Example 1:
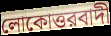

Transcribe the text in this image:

লোকোত্তরবাদী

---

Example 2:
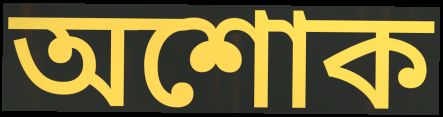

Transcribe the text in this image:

অশোক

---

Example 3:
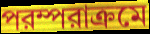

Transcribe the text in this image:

পরম্পরাক্রমে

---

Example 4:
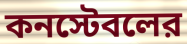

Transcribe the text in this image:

কনস্টেবলের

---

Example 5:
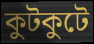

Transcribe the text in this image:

কুটকুটে